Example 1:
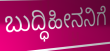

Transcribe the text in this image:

ಬುದ್ಧಿಹೀನನಿಗೆ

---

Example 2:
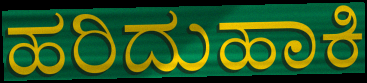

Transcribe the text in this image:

ಹರಿದುಹಾಕಿ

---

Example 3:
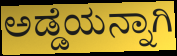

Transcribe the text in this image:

ಅಡ್ಡೆಯನ್ನಾಗಿ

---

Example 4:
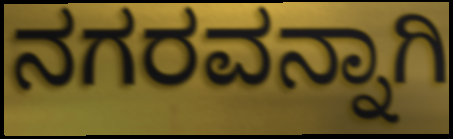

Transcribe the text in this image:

ನಗರವನ್ನಾಗಿ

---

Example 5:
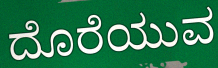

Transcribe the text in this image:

ದೊರೆಯುವ